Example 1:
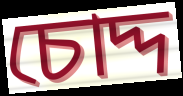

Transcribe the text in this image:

চোদ্দ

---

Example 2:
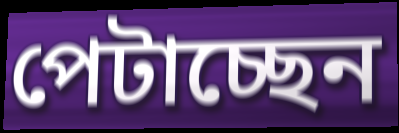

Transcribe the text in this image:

পেটাচ্ছেন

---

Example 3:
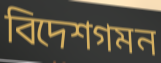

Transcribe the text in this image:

বিদেশগমন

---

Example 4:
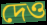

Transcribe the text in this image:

দেও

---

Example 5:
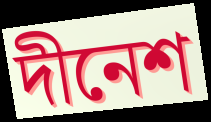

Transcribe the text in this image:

দীনেশ